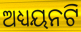
ଅଧ୍ୟୟନଟି